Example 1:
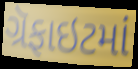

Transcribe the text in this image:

ગ્રૅફાઇટમાં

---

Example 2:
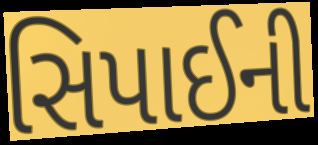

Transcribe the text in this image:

સિપાઈની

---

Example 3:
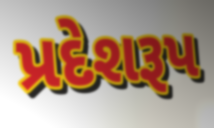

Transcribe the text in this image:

પ્રદેશરૂપ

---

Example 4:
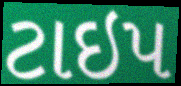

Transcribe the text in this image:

ટાઇપ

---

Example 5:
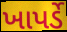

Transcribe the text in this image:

ખાપર્ડે